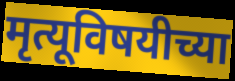
मृत्यूविषयीच्या